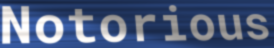
Notorious